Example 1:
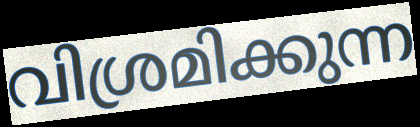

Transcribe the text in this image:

വിശ്രമിക്കുന്ന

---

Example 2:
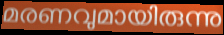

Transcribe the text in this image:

മരണവുമായിരുന്നു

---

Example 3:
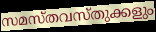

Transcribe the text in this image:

സമസ്തവസ്തുക്കളും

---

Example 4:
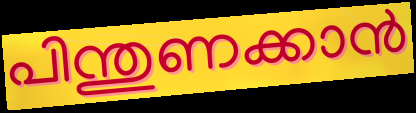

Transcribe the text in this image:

പിന്തുണക്കാൻ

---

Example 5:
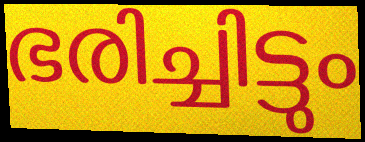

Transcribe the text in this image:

ഭരിച്ചിട്ടും